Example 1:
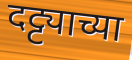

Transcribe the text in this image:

दट्ट्याच्या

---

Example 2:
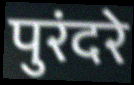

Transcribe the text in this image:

पुरंदरे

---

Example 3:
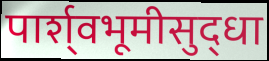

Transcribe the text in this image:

पार्श्वभूमीसुद्धा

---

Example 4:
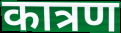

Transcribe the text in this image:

कात्रण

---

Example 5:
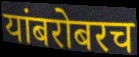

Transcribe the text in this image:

यांबरोबरच